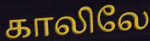
காலிலே